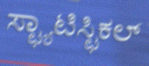
ಸ್ಟ್ಯಾಟಿಸ್ಟಿಕಲ್